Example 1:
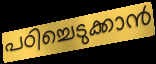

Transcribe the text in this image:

പഠിച്ചെടുക്കാൻ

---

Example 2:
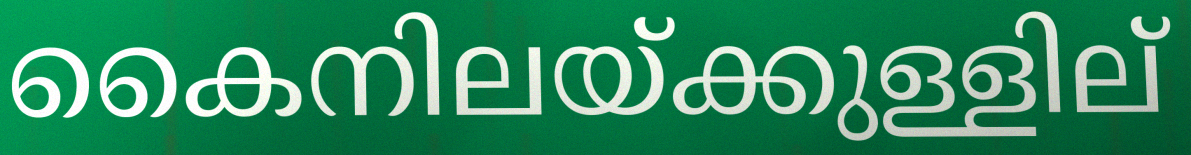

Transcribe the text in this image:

കൈനിലയ്ക്കുള്ളില്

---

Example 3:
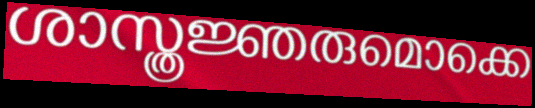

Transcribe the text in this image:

ശാസ്ത്രജ്ഞരുമൊക്കെ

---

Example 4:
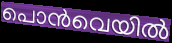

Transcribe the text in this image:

പൊൻവെയിൽ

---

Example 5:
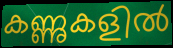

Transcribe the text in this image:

കണ്ണുകളിൽ